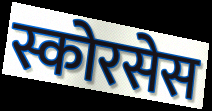
स्कोरसेस